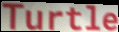
Turtle